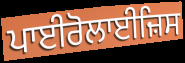
ਪਾਈਰੋਲਾਈਜ਼ਿਸ